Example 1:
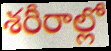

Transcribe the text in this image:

శరీరాల్లో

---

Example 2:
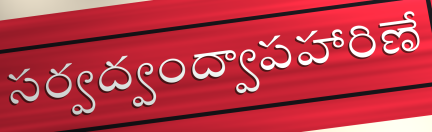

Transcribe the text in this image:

సర్వద్వంద్వాపహారిణే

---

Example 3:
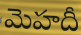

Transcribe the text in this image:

మెహదీ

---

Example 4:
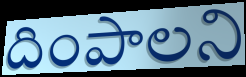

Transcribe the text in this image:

దింపాలని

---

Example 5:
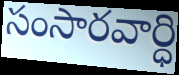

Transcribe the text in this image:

సంసారవార్ధి